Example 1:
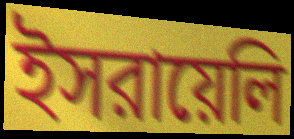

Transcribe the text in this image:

ইসরায়েলি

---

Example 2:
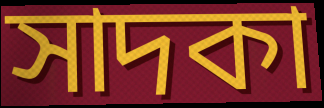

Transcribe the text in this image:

সাদকা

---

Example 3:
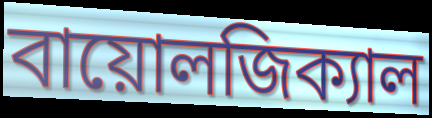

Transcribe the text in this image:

বায়োলজিক্যাল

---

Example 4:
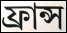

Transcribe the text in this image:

ফ্রান্স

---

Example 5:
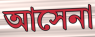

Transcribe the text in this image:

আসেনা